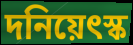
দনিয়েৎস্ক